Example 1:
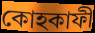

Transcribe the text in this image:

কোহকাফী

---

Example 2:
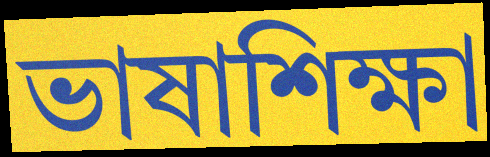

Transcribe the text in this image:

ভাষাশিক্ষা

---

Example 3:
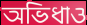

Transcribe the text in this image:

অভিধাও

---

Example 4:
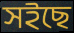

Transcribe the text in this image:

সইছে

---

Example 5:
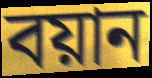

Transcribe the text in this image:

বয়ান